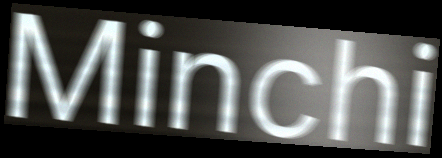
Minchi